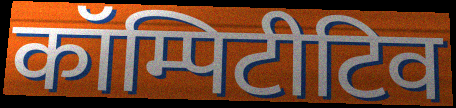
कॉम्पिटीटिव